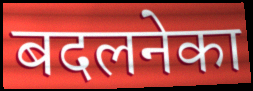
बदलनेका